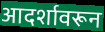
आदर्शावरून